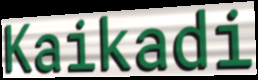
Kaikadi